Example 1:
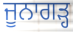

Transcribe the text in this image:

ਜੂਨਾਗੜ੍ਹ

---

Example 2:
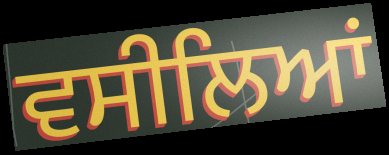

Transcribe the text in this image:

ਵਸੀਲਿਆਂ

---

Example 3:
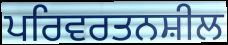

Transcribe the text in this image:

ਪਰਿਵਰਤਨਸ਼ੀਲ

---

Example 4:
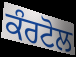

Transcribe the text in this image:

ਕੰਰਟੋਲ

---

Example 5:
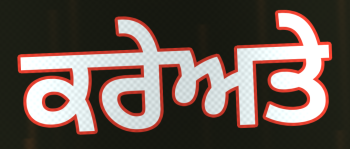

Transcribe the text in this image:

ਕਰੇਅਤੇ